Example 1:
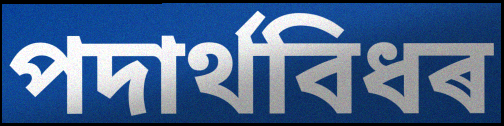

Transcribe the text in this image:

পদাৰ্থবিধৰ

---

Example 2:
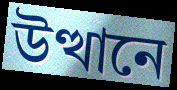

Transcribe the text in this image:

উত্থানে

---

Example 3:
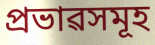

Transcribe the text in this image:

প্ৰভাৱসমূহ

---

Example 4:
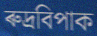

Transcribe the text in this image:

ৰুদ্ৰবিপাক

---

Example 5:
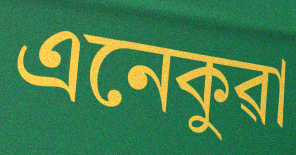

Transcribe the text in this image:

এনেকুৱা